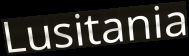
Lusitania